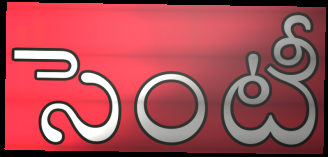
సెంటీ